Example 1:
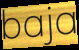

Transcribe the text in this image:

baja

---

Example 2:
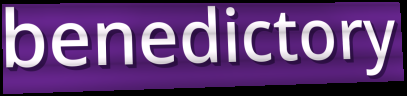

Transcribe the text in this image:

benedictory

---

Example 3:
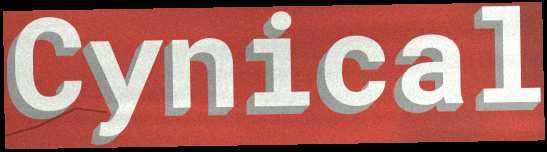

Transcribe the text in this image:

Cynical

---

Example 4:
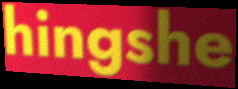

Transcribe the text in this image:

hingshe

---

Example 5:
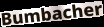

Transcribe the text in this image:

Bumbacher